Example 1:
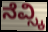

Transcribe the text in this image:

ನೆವ್ಸ್ಕಿ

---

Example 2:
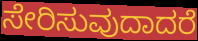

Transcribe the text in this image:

ಸೇರಿಸುವುದಾದರೆ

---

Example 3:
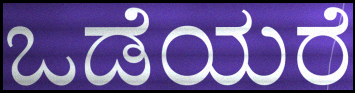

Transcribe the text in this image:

ಒಡೆಯರೆ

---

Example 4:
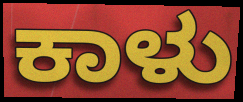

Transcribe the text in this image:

ಕಾಳು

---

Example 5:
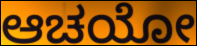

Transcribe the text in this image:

ಆಚಯೋ